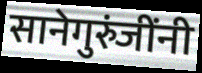
सानेगुरुंजींनी